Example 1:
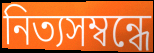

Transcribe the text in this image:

নিত্যসম্বন্ধে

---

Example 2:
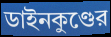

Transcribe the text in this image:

ডাইনকুণ্ডের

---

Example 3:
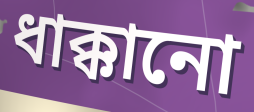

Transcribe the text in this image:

ধাক্কানো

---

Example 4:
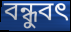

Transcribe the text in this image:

বন্ধুবৎ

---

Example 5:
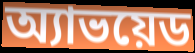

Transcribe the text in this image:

অ্যাভয়েড